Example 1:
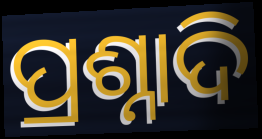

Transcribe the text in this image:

ପ୍ରଶ୍ନାଦି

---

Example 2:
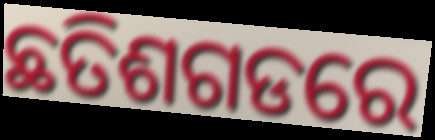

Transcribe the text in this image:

ଛତିଶଗଡରେ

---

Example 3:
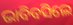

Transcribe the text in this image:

ଭାବିବସିଲେ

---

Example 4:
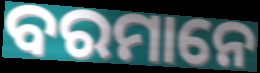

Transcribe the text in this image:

ବରମାନେ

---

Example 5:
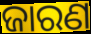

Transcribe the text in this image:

ଜାରଣ